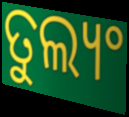
ତୁଲ୍ୟଂ